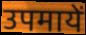
उपमायें